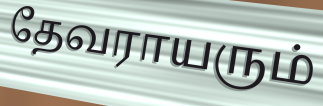
தேவராயரும்